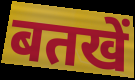
बतखें